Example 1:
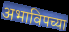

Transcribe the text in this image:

अभाविपच्या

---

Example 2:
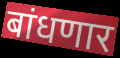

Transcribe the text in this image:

बांधणार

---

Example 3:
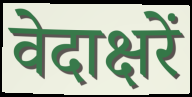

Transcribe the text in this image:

वेदाक्षरें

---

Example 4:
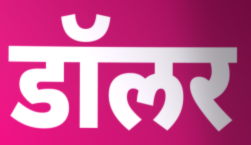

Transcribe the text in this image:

डॉलर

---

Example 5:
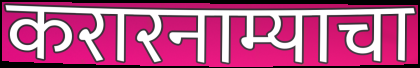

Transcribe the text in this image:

करारनाम्याचा